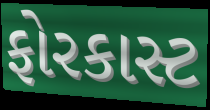
ફોરકાસ્ટ